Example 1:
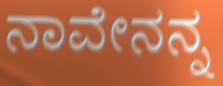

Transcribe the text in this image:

ನಾವೇನನ್ನ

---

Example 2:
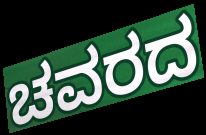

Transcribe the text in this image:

ಚವರದ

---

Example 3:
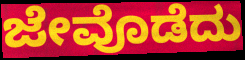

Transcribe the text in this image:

ಜೇವೊಡೆದು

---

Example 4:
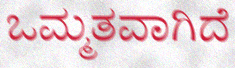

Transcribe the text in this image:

ಒಮ್ಮತವಾಗಿದೆ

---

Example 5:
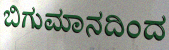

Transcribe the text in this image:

ಬಿಗುಮಾನದಿಂದ